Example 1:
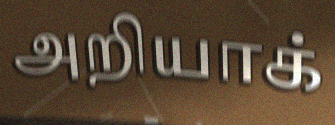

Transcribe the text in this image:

அறியாக்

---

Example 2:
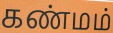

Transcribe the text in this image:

கண்மம்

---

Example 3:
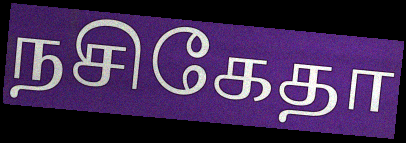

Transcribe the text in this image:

நசிகேதா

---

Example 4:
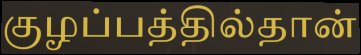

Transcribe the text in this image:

குழப்பத்தில்தான்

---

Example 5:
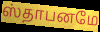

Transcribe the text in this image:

ஸ்தாபனமே